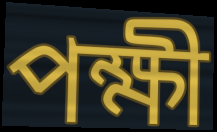
পক্ষী